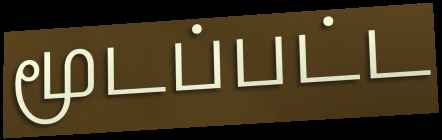
மூடப்பட்ட